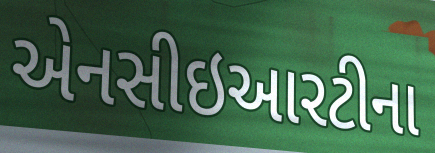
એનસીઇઆરટીના